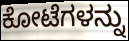
ಕೋಟೆಗಳನ್ನು